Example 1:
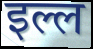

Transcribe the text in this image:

इल्ल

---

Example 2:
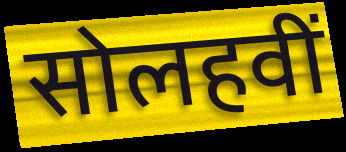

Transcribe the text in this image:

सोलहवीं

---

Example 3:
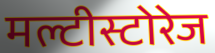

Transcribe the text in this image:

मल्टीस्टोरेज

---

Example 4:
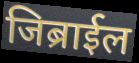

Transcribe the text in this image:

जिब्राईल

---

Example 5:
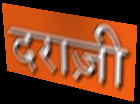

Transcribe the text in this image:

दराज़ी